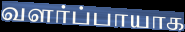
வளர்ப்பாயாக